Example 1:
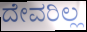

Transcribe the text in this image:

ದೇವರಿಲ್ಲ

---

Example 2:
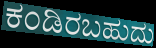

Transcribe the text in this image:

ಕಂಡಿರಬಹುದು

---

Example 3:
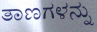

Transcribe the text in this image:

ತಾಣಗಳನ್ನು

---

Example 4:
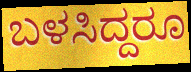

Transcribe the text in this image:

ಬಳಸಿದ್ದರೂ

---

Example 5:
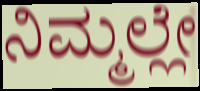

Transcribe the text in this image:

ನಿಮ್ಮಲ್ಲೇ